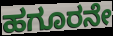
ಹಗೂರನೇ